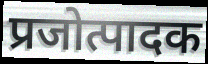
प्रजोत्पादक